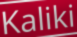
Kaliki